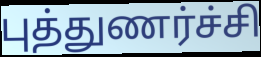
புத்துணர்ச்சி